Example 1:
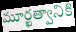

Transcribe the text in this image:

మూర్ఖత్వానికి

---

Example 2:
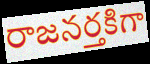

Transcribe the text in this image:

రాజనర్తకిగా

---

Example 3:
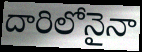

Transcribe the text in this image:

దారిలోనైనా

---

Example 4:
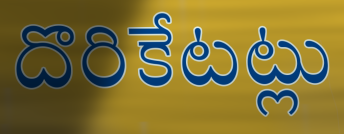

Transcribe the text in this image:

దొరికేటట్లు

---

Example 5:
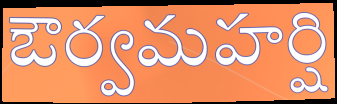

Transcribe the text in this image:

ఔర్వమహర్షి